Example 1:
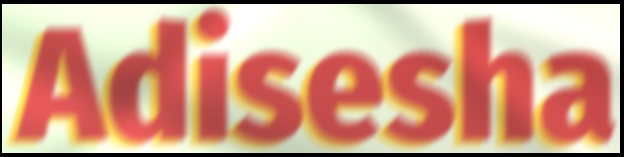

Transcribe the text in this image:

Adisesha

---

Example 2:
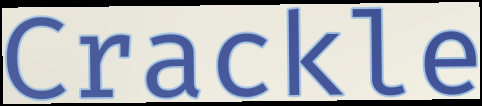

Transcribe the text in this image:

Crackle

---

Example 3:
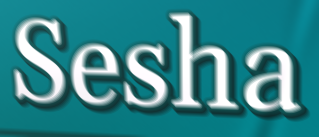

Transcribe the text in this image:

Sesha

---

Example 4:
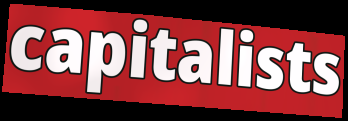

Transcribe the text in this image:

capitalists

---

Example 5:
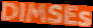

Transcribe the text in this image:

DIMSEs